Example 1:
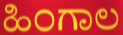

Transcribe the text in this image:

ಹಿಂಗಾಲ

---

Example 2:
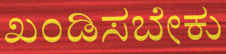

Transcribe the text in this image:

ಖಂಡಿಸಬೇಕು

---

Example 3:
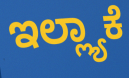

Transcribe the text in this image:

ಇಲ್ಲ್ಯಾಕೆ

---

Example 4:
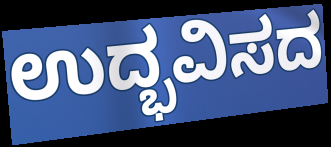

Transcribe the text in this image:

ಉದ್ಭವಿಸದ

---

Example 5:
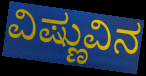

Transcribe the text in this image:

ವಿಷ್ಣುವಿನ